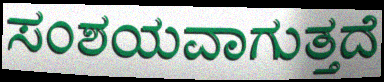
ಸಂಶಯವಾಗುತ್ತದೆ